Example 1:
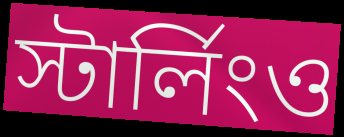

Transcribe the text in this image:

স্টার্লিংও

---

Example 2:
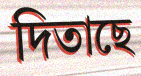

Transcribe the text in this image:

দিতাছে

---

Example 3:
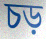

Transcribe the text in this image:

চড়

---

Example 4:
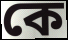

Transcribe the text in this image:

কে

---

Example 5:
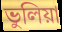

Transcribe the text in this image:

ভুলিয়া